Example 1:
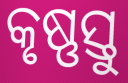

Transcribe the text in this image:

କୃଷ୍ଣସ୍ତୁ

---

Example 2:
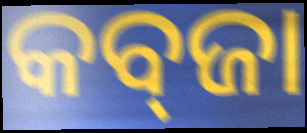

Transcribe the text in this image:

କବ୍‍ଜା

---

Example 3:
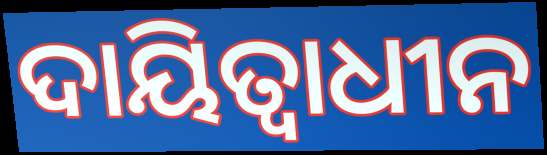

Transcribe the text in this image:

ଦାୟିତ୍ଵାଧୀନ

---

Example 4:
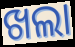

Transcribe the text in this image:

ଖଲା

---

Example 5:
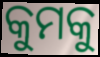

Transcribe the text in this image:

କୁମକୁ